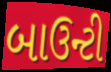
બાઉન્ટી